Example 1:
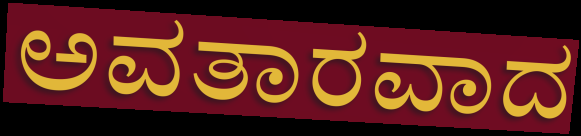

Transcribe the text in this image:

ಅವತಾರವಾದ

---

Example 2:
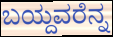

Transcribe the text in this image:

ಬಯ್ದವರೆನ್ನ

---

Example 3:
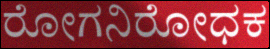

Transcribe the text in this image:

ರೋಗನಿರೋಧಕ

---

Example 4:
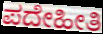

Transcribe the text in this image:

ಪದೇಹೀತಿ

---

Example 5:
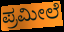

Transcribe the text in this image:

ಪ್ರಮೀಲೆ